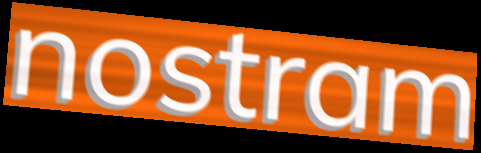
nostram